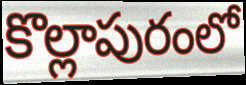
కొల్లాపురంలో